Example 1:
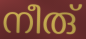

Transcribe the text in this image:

നീരു്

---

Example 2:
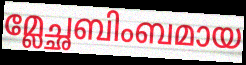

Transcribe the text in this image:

മ്ലേച്ഛബിംബമായ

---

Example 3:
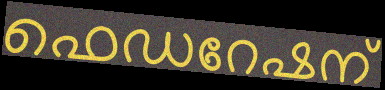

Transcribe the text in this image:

ഫെഡറേഷന്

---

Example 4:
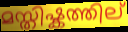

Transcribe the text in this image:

മസ്തിഷ്കത്തില്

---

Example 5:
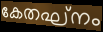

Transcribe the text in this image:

കേതഘ്നം